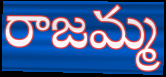
రాజమ్మ